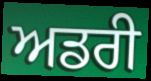
ਅਡਰੀ